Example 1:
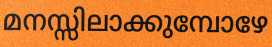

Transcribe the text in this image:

മനസ്സിലാക്കുമ്പോഴേ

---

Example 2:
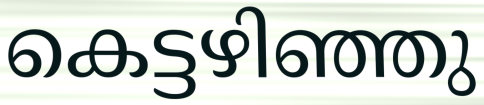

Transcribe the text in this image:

കെട്ടഴിഞ്ഞു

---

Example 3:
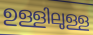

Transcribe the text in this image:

ഉള്ളിലുള്ള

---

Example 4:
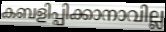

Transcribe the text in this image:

കബളിപ്പിക്കാനാവില്ല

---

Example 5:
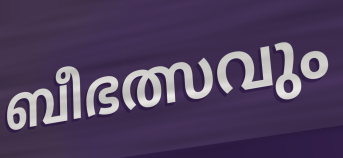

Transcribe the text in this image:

ബീഭത്സവും